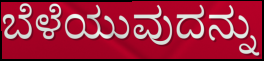
ಬೆಳೆಯುವುದನ್ನು